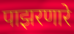
पाझरणारे